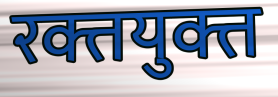
रक्तयुक्त